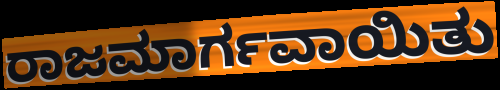
ರಾಜಮಾರ್ಗವಾಯಿತು